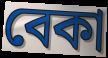
বেকা